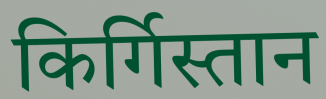
किर्गिस्तान